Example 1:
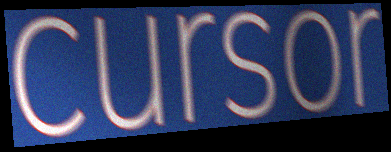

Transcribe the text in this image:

cursor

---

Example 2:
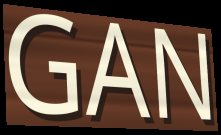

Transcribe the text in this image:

GAN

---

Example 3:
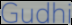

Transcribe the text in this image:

Gudhi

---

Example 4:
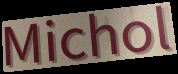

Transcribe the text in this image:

Michol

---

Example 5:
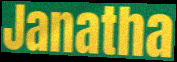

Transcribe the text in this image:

Janatha